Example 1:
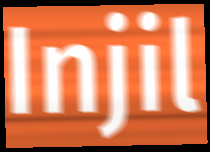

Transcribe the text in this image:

Injil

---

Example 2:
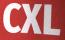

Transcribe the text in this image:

CXL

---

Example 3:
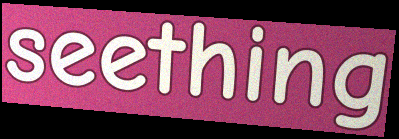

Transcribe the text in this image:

seething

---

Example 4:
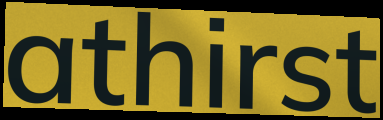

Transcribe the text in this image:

athirst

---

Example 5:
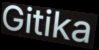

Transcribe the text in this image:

Gitika